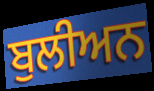
ਬੁਲੀਅਨ